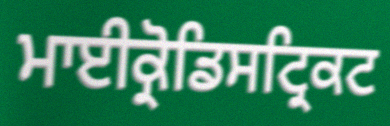
ਮਾਈਕ੍ਰੋਡਿਸਟ੍ਰਿਕਟ